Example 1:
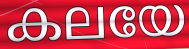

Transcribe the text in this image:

കലയേ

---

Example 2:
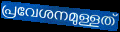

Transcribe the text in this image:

പ്രവേശനമുള്ളത്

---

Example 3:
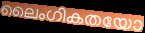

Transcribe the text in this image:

ലൈംഗികതയോ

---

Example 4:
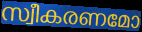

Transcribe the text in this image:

സ്വീകരണമോ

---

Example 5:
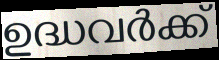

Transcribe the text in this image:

ഉദ്ധവർക്ക്